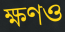
ক্ষণও